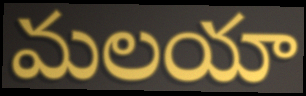
మలయా